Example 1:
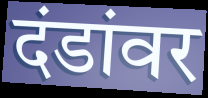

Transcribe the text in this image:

दंडांवर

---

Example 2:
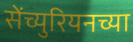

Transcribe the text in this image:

सेंच्युरियनच्या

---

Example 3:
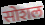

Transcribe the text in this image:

सोशल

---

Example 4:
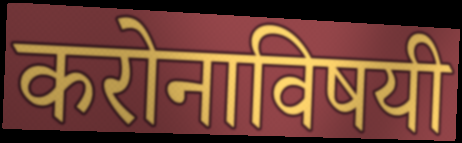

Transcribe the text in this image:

करोनाविषयी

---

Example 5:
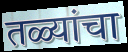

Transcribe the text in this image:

तळ्यांचा